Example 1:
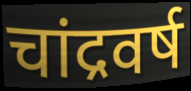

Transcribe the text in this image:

चांद्रवर्ष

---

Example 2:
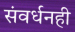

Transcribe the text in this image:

संवर्धनही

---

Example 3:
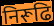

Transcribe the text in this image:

निरूढि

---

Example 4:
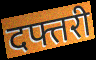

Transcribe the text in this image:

दफ्तरी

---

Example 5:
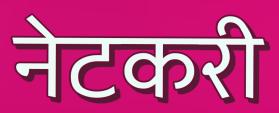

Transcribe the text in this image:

नेटकरी